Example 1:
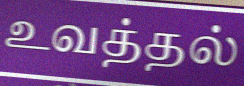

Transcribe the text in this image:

உவத்தல்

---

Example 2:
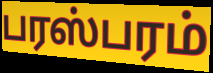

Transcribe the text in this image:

பரஸ்பரம்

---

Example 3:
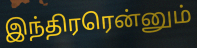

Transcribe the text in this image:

இந்திரரென்னும்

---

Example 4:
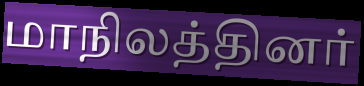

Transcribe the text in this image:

மாநிலத்தினர்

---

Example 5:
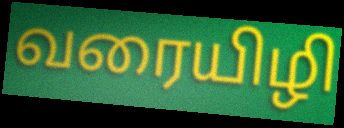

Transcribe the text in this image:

வரையிழி